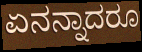
ಏನನ್ನಾದರೂ